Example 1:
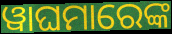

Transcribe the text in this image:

ୱାଘମାରେଙ୍କ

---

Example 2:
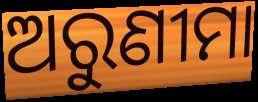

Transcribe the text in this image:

ଅରୁଣୀମା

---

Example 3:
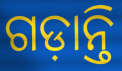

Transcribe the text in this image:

ଗଡ଼ାନ୍ତି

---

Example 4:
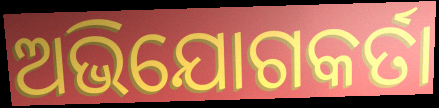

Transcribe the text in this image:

ଅଭିଯୋଗକର୍ତା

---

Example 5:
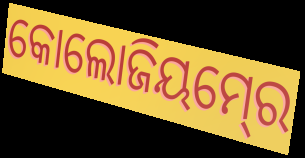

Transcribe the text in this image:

କୋଲୋଜିୟମ୍‍ରେ